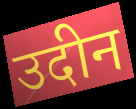
उदीन